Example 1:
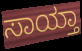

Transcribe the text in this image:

ಸಾಯ್ತಾ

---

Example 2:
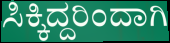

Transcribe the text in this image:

ಸಿಕ್ಕಿದ್ದರಿಂದಾಗಿ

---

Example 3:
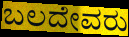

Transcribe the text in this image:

ಬಲದೇವರು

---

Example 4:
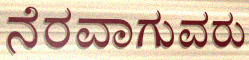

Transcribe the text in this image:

ನೆರವಾಗುವರು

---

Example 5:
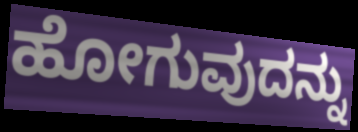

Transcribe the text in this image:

ಹೋಗುವುದನ್ನು